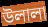
উলালা